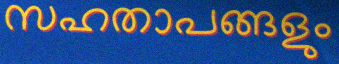
സഹതാപങ്ങളും